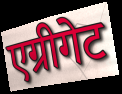
एग्रीगेट